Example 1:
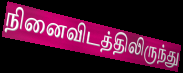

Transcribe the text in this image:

நினைவிடத்திலிருந்து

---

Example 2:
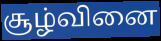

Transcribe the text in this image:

சூழ்வினை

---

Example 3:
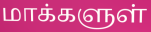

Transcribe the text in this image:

மாக்களுள்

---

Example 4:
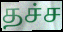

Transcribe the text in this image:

தச்ச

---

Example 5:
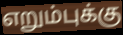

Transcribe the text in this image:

எறும்புக்கு